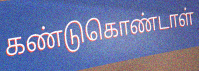
கண்டுகொண்டாள்